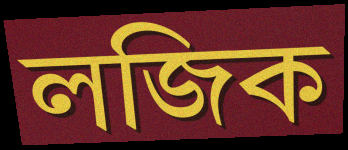
লজিক